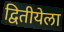
द्वितीयेला